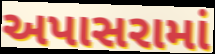
અપાસરામાં